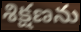
శిక్షణను